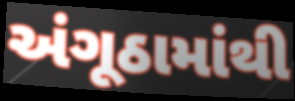
અંગૂઠામાંથી